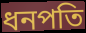
ধনপতি